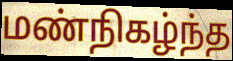
மண்நிகழ்ந்த